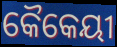
କୈକେୟୀ